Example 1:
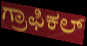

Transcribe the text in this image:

ಗ್ರಾಫಿಕಲ್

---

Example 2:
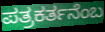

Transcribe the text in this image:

ಪತ್ರಕರ್ತನೆಂಬ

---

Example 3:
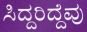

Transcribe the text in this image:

ಸಿದ್ದರಿದ್ದೆವು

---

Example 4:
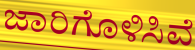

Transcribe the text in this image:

ಜಾರಿಗೊಳಿಸಿವೆ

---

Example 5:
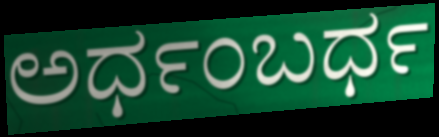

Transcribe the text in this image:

ಅರ್ಧಂಬರ್ಧ